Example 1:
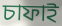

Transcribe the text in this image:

চাফাই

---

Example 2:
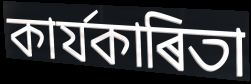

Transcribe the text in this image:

কাৰ্যকাৰিতা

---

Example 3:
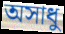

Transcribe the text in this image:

অসাধু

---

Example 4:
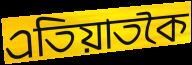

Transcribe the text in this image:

এতিয়াতকৈ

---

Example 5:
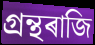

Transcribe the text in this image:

গ্ৰন্থৰাজি